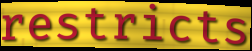
restricts